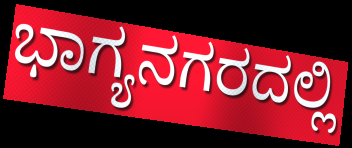
ಭಾಗ್ಯನಗರದಲ್ಲಿ